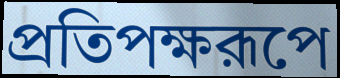
প্রতিপক্ষরূপে